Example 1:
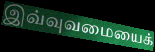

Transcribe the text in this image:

இவ்வுவமையைக்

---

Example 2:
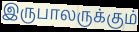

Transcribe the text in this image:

இருபாலருக்கும்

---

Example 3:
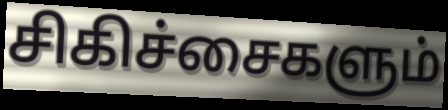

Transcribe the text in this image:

சிகிச்சைகளும்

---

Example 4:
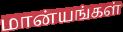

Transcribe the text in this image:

மான்யங்கள்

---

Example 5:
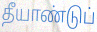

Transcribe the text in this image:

தீயாண்டுப்